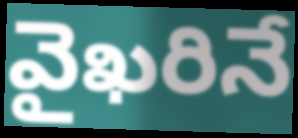
వైఖరినే